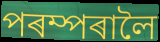
পৰম্পৰালৈ